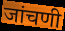
जांचणी